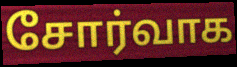
சோர்வாக